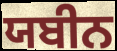
ਯਬੀਨ